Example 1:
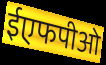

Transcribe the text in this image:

ईएफपीओ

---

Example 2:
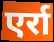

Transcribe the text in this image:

एर्रा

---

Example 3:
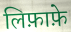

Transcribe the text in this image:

लिफ़ाफ़े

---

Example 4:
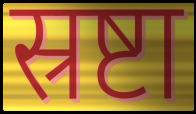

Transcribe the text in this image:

स्रष्टा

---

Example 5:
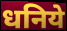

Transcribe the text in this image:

धनिये